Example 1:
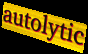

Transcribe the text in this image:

autolytic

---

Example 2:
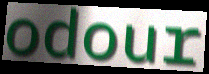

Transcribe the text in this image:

odour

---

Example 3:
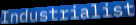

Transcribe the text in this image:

Industrialist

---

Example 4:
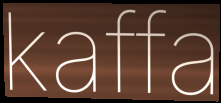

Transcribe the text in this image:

kaffa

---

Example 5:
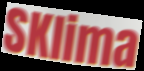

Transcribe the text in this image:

SKlima